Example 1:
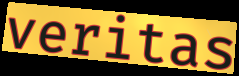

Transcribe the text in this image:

veritas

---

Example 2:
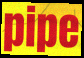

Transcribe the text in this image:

pipe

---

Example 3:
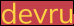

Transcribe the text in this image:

devru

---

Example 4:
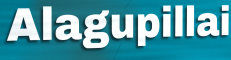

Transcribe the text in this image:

Alagupillai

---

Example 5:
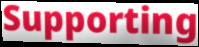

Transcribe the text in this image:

Supporting